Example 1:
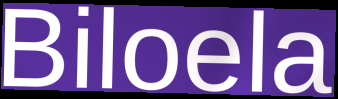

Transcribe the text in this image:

Biloela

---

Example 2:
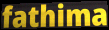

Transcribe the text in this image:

fathima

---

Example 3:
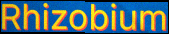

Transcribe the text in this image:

Rhizobium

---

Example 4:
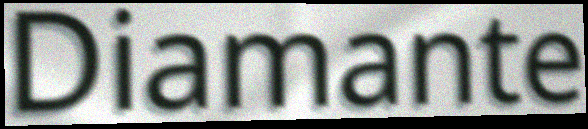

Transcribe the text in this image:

Diamante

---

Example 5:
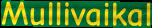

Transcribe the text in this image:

Mullivaikal